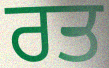
ਰਤ